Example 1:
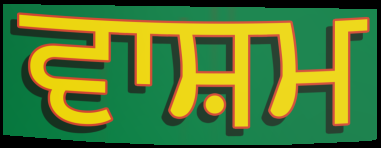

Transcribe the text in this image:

ਵਾਸ਼ਮ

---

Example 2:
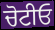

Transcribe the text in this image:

ਚੋਟੀਓ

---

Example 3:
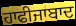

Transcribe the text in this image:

ਹਾਫੀਜਾਬਾਦ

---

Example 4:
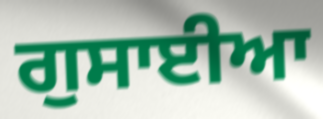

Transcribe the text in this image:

ਗੁਸਾਈਆ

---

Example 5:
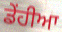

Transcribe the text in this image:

ਡੇਂਹੀਆ